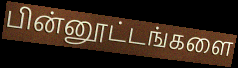
பின்னூட்டங்களை